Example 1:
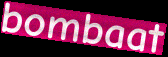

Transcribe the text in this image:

bombaat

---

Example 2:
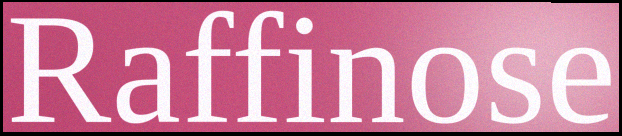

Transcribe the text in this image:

Raffinose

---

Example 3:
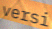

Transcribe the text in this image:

versi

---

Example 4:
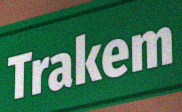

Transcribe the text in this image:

Trakem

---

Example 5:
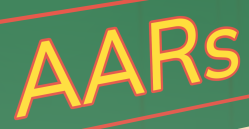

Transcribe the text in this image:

AARs